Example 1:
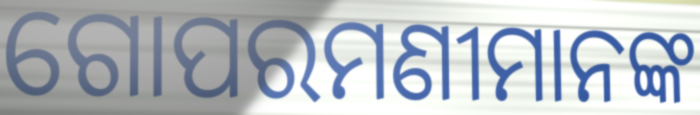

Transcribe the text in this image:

ଗୋପରମଣୀମାନଙ୍କ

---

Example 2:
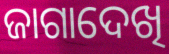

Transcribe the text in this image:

ଜାଗାଦେଖି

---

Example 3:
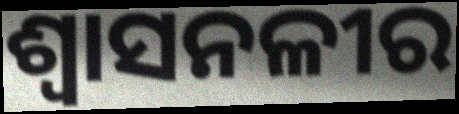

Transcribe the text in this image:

ଶ୍ୱାସନଳୀର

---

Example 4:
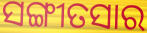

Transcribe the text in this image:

ସଙ୍ଗୀତସାର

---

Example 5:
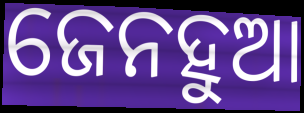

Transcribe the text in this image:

ଜେନହୁଆ